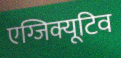
एग्जिक्यूटिव